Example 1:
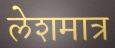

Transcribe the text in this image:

लेशमात्र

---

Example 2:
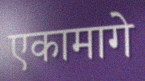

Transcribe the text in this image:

एकामागे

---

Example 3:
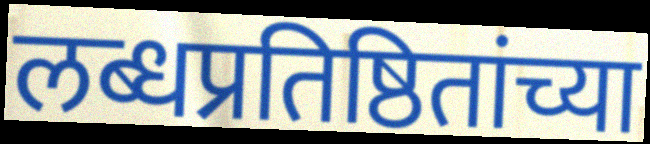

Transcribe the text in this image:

लब्धप्रतिष्ठितांच्या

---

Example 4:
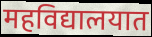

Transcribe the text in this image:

महविद्यालयात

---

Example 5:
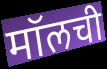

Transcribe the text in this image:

मॉलची